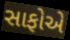
સાફોએ